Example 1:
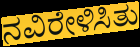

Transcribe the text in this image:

ನವಿರೇಳಿಸಿತು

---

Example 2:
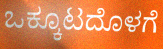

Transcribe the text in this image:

ಒಕ್ಕೂಟದೊಳಗೆ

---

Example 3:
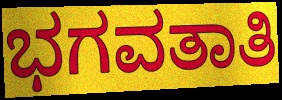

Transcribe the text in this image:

ಭಗವತಾತಿ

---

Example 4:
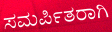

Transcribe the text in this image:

ಸಮರ್ಪಿತರಾಗಿ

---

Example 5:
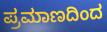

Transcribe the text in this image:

ಪ್ರಮಾಣದಿಂದ